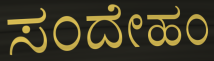
ಸಂದೇಹಂ